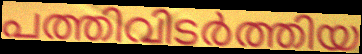
പത്തിവിടർത്തിയ